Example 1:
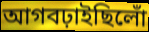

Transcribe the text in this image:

আগবঢ়াইছিলোঁ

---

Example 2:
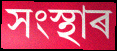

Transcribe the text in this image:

সংস্থাৰ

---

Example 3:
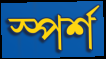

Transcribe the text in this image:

স্পৰ্শ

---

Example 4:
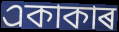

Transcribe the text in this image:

একাকাৰ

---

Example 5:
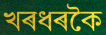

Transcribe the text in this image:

খৰধৰকৈ